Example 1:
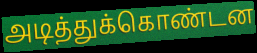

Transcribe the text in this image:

அடித்துக்கொண்டன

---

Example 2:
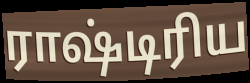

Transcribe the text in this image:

ராஷ்டிரிய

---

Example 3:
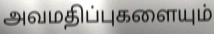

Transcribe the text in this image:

அவமதிப்புகளையும்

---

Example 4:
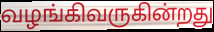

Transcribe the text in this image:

வழங்கிவருகின்றது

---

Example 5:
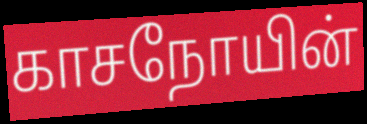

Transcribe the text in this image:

காசநோயின்